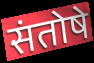
संतोषे